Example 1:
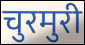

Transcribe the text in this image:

चुरमुरी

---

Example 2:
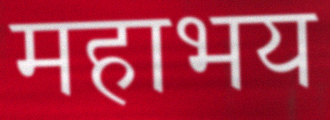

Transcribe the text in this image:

महाभय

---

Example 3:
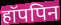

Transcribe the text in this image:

हॉपपिन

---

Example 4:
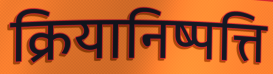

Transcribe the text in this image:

क्रियानिष्पत्ति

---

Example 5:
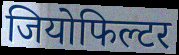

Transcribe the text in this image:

जियोफिल्टर